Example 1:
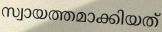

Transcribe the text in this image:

സ്വായത്തമാക്കിയത്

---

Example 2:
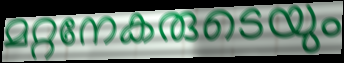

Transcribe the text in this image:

മറ്റനേകരുടെയും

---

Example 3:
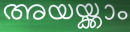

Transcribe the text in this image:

അയയ്ക്കാം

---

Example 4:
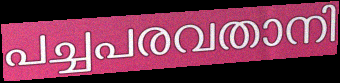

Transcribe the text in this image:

പച്ചപരവതാനി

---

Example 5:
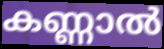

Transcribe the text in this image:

കണ്ണാൽ